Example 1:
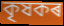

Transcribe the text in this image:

কৃষকৰ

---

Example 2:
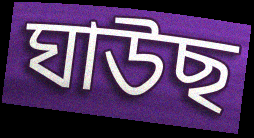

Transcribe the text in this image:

ঘাউছ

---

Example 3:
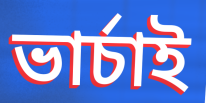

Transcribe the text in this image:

ভাৰ্চাই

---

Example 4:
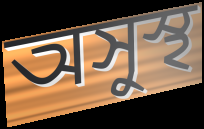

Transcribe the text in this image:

অসুস্থ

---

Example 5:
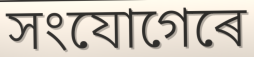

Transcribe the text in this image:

সংযোগেৰে